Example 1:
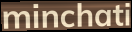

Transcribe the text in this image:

minchati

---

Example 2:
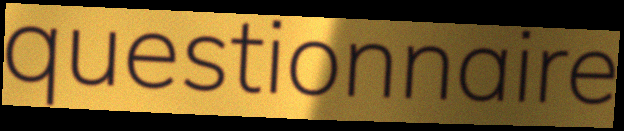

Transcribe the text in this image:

questionnaire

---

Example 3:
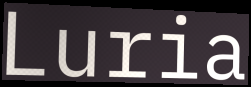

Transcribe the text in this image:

Luria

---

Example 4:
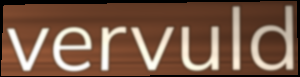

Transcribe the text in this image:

vervuld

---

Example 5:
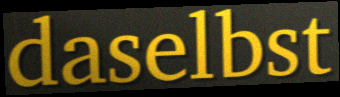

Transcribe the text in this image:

daselbst